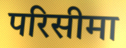
परिसीमा